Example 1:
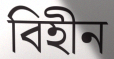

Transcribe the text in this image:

বিহীন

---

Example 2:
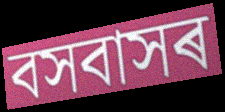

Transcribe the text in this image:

বসবাসৰ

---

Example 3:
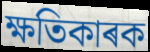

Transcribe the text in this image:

ক্ষতিকাৰক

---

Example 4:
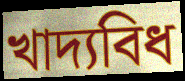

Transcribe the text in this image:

খাদ্যবিধ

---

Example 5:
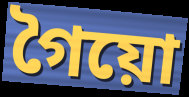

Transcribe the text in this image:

গৈয়ো